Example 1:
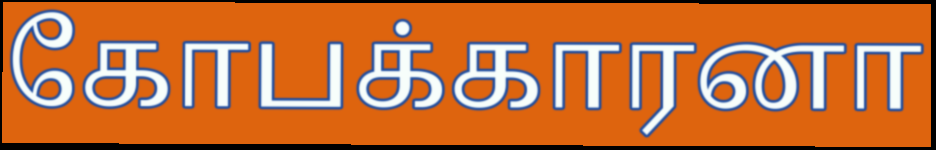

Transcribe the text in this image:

கோபக்காரனா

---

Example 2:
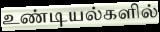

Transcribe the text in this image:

உண்டியல்களில்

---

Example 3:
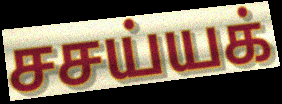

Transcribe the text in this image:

சசய்யக்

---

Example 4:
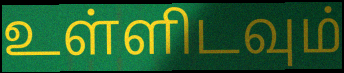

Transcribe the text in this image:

உள்ளிடவும்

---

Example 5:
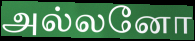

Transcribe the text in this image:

அல்லனோ